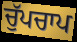
ਚੁੱਪਚਾਪ